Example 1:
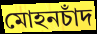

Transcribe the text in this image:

মোহনচাঁদ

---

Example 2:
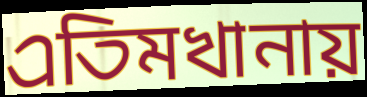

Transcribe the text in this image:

এতিমখানায়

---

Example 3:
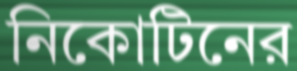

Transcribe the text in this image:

নিকোটিনের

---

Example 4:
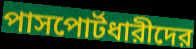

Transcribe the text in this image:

পাসপোর্টধারীদের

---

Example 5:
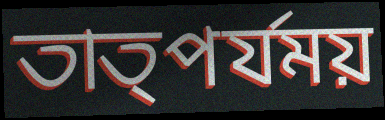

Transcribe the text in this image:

তাত্পর্যময়